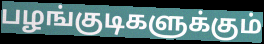
பழங்குடிகளுக்கும்